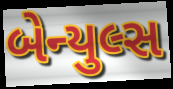
બેન્યુલ્સ